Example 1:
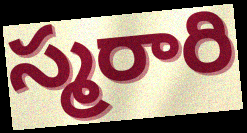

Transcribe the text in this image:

స్మరారి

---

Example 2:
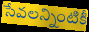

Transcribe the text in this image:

సేవలన్నింటికీ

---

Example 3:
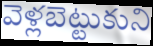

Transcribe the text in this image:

వెళ్లబెట్టుకుని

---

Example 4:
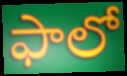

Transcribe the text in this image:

ఫాలో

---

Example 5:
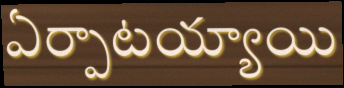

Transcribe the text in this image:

ఏర్పాటయ్యాయి